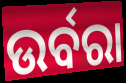
ଉର୍ବରା